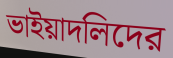
ভাইয়াদলিদের